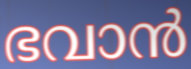
ഭവാൻ